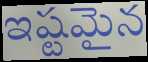
ఇష్టమైన